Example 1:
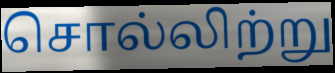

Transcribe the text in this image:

சொல்லிற்று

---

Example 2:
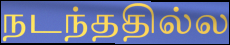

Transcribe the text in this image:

நடந்ததில்ல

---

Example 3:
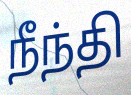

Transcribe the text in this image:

நீந்தி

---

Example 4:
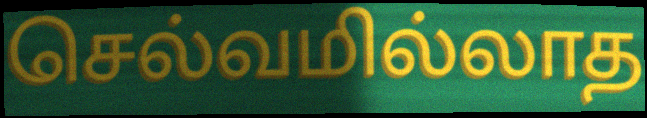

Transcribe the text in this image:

செல்வமில்லாத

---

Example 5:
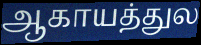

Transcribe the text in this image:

ஆகாயத்துல